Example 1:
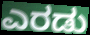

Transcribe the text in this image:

ಎರಡು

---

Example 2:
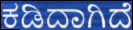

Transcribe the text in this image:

ಕಡಿದಾಗಿದೆ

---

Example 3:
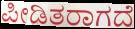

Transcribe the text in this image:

ಪೀಡಿತರಾಗದೆ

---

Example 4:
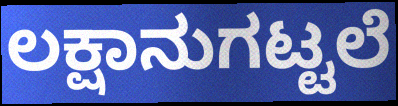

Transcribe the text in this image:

ಲಕ್ಷಾನುಗಟ್ಟಲೆ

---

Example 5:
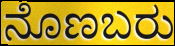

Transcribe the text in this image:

ನೊಣಬರು